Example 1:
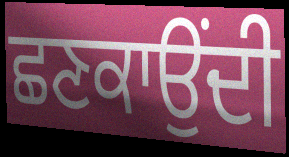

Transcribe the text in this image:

ਛਣਕਾਉਂਦੀ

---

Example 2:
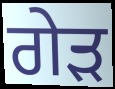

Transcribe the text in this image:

ਗੇੜ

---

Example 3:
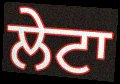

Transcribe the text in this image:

ਲੇਟਾ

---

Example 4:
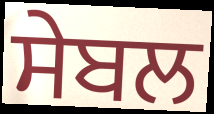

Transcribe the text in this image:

ਸੇਬਲ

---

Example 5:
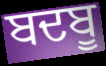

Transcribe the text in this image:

ਬਦਬੂ